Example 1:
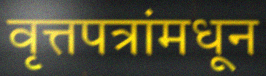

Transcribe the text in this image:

वृत्तपत्रांमधून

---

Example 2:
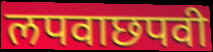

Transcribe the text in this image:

लपवाछपवी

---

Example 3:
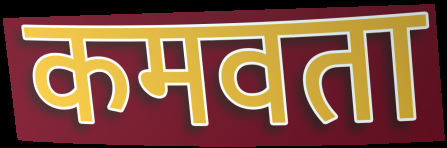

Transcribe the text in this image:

कमवता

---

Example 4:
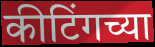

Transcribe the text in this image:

कीटिंगच्या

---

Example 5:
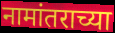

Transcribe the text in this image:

नामांतराच्या